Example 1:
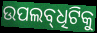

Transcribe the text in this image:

ଉପଲବ୍‌ଧିଟିକୁ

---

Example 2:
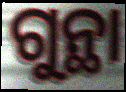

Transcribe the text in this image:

ଗୁନ୍ଥା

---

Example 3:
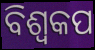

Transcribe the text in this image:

ବିଶ୍ୱକପ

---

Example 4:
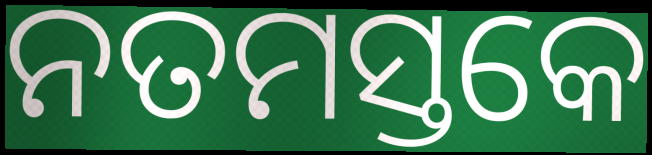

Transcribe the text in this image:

ନତମସ୍ତକେ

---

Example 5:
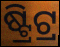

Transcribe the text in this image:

ଷ୍ଟ୍ରିଟ୍ର